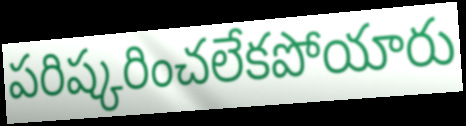
పరిష్కరించలేకపోయారు